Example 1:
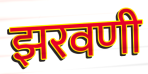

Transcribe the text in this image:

झरवणी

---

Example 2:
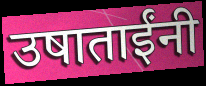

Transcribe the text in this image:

उषाताईंनी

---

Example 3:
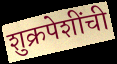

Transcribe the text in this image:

शुक्रपेशींची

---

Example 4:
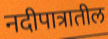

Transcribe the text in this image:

नदीपात्रातील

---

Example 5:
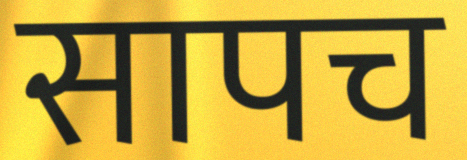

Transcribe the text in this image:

सापच